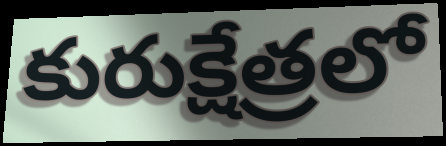
కురుక్షేత్రలో